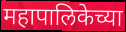
महापालिकेच्या